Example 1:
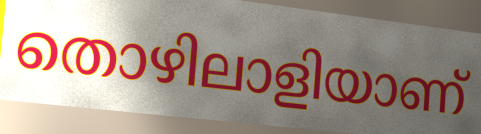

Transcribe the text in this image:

തൊഴിലാളിയാണ്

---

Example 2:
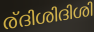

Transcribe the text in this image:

ര്ദിശിദിശി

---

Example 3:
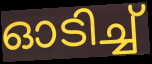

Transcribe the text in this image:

ഓടിച്ച്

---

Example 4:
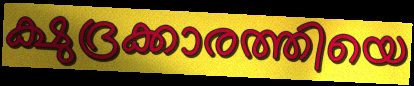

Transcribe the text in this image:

ക്ഷുദ്രക്കാരത്തിയെ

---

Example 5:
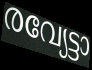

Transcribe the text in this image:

രവ്യേട്ടാ